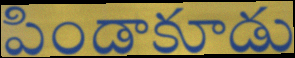
పిండాకూడు